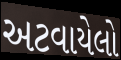
અટવાયેલો